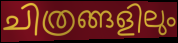
ചിത്രങ്ങളിലും